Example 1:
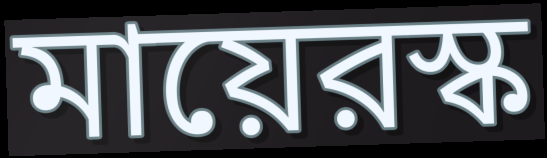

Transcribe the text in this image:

মায়েরস্ক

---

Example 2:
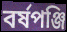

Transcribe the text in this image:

বর্ষপঞ্জি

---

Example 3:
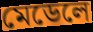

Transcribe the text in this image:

মেডেলে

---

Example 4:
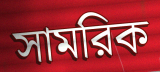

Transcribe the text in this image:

সামরিক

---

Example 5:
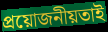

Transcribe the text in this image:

প্রয়োজনীয়তাই